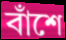
বাঁশে